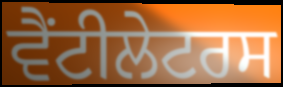
ਵੈਂਟੀਲੇਟਰਸ